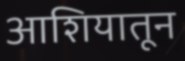
आशियातून